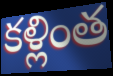
కళ్లింత